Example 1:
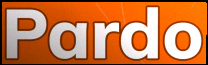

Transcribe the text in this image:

Pardo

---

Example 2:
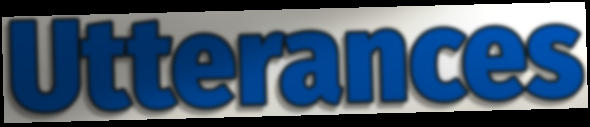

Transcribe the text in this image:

Utterances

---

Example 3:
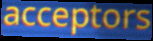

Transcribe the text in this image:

acceptors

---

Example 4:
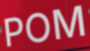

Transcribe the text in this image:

POM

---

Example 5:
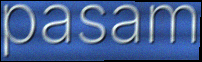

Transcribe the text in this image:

pasam